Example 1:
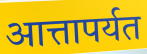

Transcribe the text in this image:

आत्तापर्यत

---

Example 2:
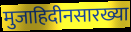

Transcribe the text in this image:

मुजाहिदीनसारख्या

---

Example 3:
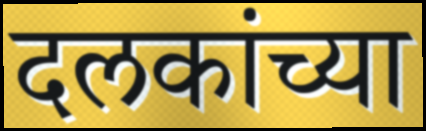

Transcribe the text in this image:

दलकांच्या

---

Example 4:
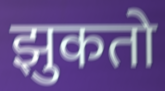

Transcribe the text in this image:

झुकतो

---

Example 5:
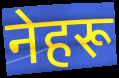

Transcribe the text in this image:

नेहरू